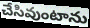
చేసివుంటాను